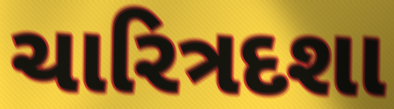
ચારિત્રદશા